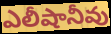
ఎలీషానీవు